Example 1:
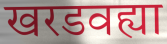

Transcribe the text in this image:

खरडवह्या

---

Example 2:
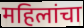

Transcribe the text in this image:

महिलांचा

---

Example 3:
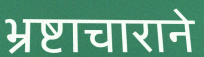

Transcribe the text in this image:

भ्रष्टाचाराने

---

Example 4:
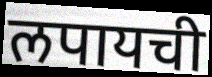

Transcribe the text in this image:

लपायची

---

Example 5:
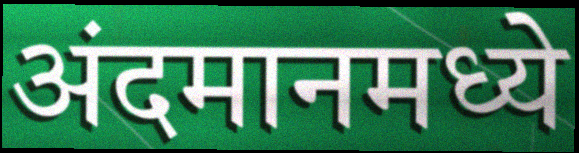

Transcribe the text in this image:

अंदमानमध्ये